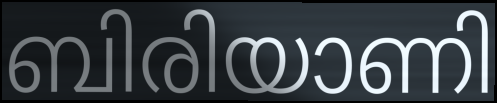
ബിരിയാണി